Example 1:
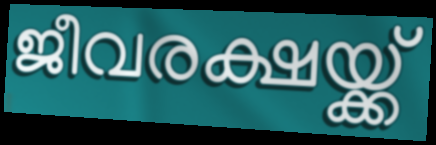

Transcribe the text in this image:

ജീവരക്ഷയ്ക്ക്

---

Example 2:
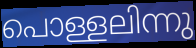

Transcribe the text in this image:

പൊള്ളലിന്നു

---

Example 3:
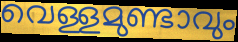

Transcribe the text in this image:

വെള്ളമുണ്ടാവും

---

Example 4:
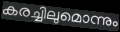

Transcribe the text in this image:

കരച്ചിലുമൊന്നും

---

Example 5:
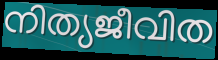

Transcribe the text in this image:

നിത്യജീവിത